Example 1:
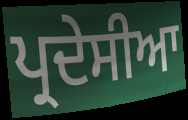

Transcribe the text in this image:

ਪ੍ਰਦੇਸੀਆ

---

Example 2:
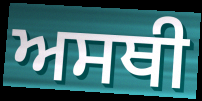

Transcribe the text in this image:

ਅਸਥੀ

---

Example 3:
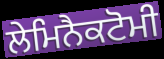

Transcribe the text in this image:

ਲੇਮਿਨੈਕਟੋਮੀ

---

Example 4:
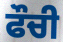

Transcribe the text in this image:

ਫੌਚੀ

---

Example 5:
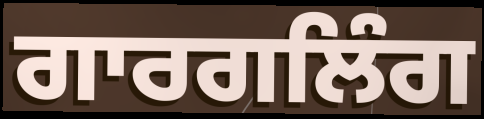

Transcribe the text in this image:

ਗਾਰਗਲਿੰਗ